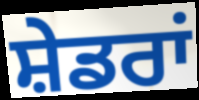
ਸ਼ੇਡਰਾਂ